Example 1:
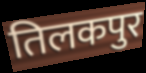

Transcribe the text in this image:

तिलकपुर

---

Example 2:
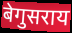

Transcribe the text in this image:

बेगुसराय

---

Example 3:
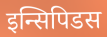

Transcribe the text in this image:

इन्सिपिडस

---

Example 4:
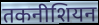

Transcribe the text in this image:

तकनीशियन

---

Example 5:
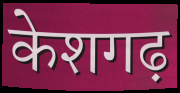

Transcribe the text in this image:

केशगढ़